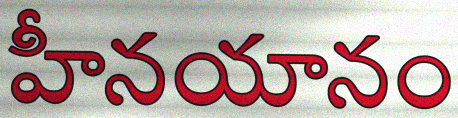
హీనయానం